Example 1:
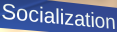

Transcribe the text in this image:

Socialization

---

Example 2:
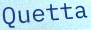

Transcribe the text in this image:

Quetta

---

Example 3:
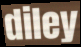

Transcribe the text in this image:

diley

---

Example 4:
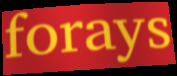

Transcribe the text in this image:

forays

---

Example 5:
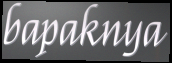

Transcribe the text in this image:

bapaknya